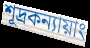
শূদ্রকন্যায়াং